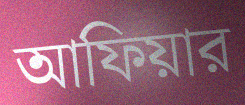
আফিয়ার